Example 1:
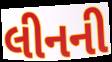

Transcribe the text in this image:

લીનની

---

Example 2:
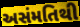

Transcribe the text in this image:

અસંમતિથી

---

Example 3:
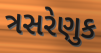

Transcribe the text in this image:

ત્રસરેણુક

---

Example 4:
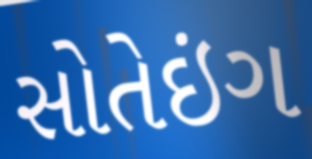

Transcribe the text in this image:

સોતેઇંગ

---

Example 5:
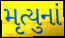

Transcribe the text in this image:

મૃત્યુનાં